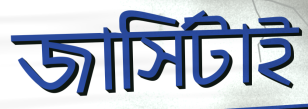
জার্সিটাই